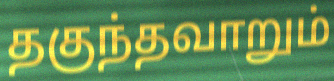
தகுந்தவாறும்